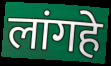
लांगहे